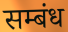
सम्बंध